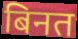
बिनत